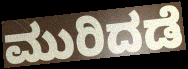
ಮುರಿದಡೆ